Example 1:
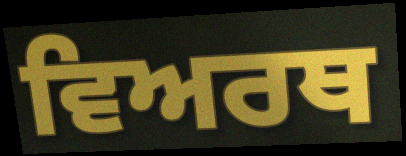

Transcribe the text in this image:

ਵਿਅਰਥ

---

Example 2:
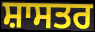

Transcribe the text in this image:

ਸ਼ਾਸਤਰ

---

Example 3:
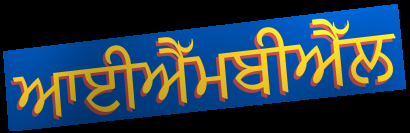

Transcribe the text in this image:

ਆਈਐੱਮਬੀਐੱਲ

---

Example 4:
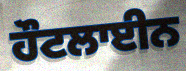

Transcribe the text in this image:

ਹੌਟਲਾਈਨ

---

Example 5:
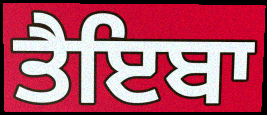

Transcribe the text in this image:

ਤੈਇਬਾ